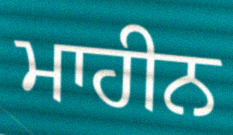
ਮਾਹੀਨ